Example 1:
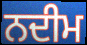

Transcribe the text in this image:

ਨਦੀਮ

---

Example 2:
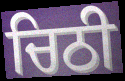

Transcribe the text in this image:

ਚਿਠੀ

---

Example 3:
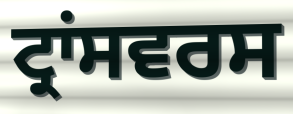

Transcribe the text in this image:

ਟ੍ਰਾਂਸਵਰਸ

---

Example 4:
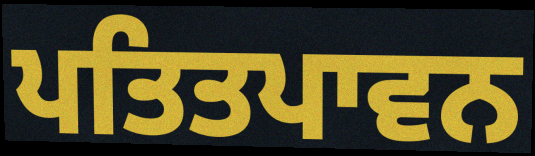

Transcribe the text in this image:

ਪਤਿਤਪਾਵਨ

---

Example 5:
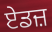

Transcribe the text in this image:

ਏਡਜ਼